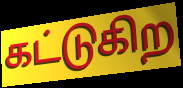
கட்டுகிற